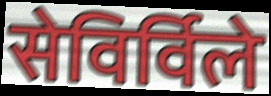
सेविर्विले